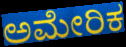
ಅಮೇರಿಕ